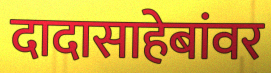
दादासाहेबांवर